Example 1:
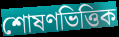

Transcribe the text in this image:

শোষণভিত্তিক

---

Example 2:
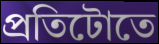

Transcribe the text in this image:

প্ৰতিটোতে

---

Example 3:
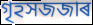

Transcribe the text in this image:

গৃহসজজাৰ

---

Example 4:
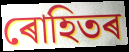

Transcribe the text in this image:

ৰোহিতৰ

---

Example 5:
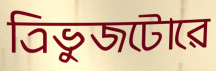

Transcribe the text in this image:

ত্ৰিভুজটোৱে